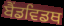
ਬੈਂਡਵਿਡਥ